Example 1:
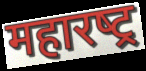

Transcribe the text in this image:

महारष्ट्र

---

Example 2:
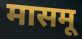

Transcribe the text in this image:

मासमू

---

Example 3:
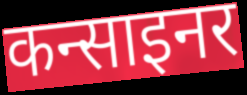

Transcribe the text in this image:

कन्साइनर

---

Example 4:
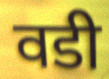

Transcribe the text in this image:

वडी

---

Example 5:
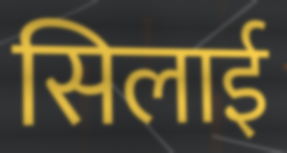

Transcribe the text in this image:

सिलाई